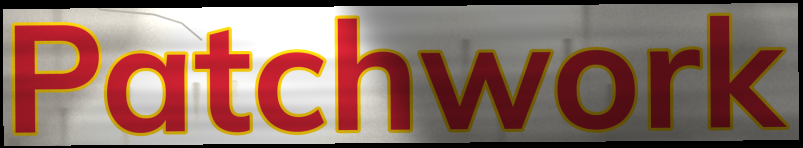
Patchwork